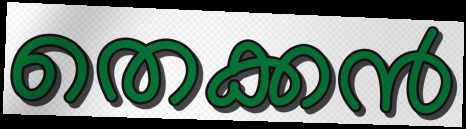
തെക്കൻ